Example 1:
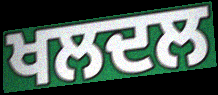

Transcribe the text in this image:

ਖਲਦਲ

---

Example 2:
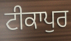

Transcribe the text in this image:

ਟੀਕਾਪੁਰ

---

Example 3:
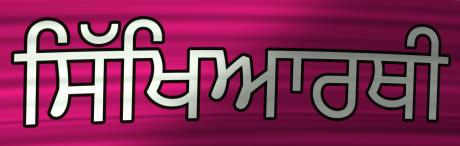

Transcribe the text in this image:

ਸਿੱਖਿਆਰਥੀ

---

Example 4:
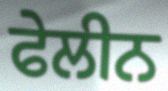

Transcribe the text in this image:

ਫੇਲੀਨ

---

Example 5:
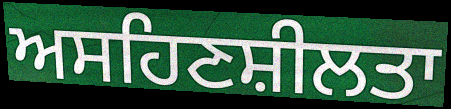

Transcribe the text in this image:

ਅਸਹਿਣਸ਼ੀਲਤਾ